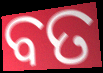
ବତ